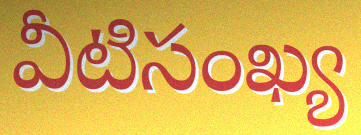
వీటిసంఖ్య